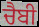
ਚੈਬੀ